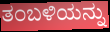
ತಂಬಳಿಯನ್ನು